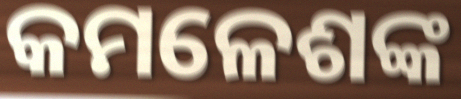
କମଳେଶଙ୍କ